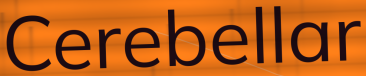
Cerebellar